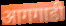
आगगाडी